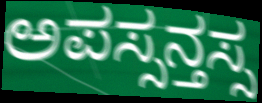
ಅಪಸ್ಸನ್ತಸ್ಸ